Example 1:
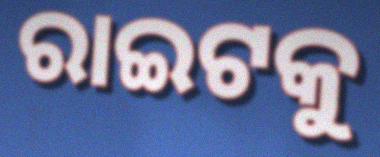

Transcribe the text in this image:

ରାଇଟକୁ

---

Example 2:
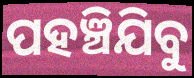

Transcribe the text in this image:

ପହଞ୍ଚିଯିବୁ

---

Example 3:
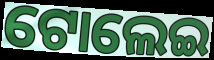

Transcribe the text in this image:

ଟୋଲେଇ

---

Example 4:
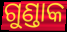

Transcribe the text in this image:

ଗୁଣ୍ଡାକ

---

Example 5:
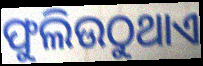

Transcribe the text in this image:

ଫୁଲିଉଠୁଥାଏ